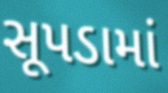
સૂપડામાં